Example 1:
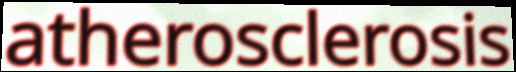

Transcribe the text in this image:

atherosclerosis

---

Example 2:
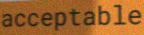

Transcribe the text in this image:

acceptable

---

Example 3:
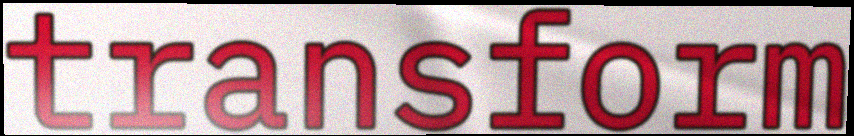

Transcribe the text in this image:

transform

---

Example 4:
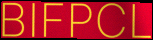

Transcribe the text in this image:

BIFPCL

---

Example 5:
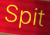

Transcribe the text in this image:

Spit